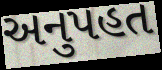
અનુપહત